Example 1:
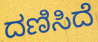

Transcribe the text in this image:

ದಣಿಸಿದೆ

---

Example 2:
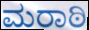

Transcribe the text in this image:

ಮರಾಠಿ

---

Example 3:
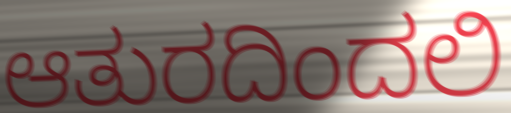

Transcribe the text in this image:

ಆತುರದಿಂದಲಿ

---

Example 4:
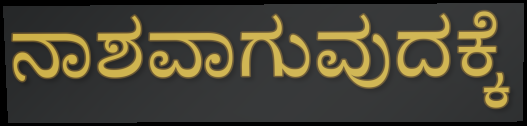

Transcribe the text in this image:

ನಾಶವಾಗುವುದಕ್ಕೆ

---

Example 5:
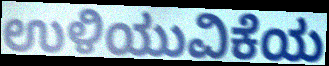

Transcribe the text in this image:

ಉಳಿಯುವಿಕೆಯ